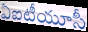
ఏఐటీయూసీ